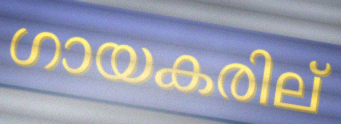
ഗായകരില്